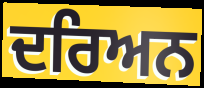
ਦਰਿਅਨ